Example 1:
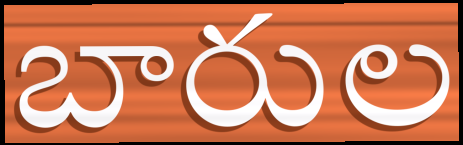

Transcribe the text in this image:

బారుల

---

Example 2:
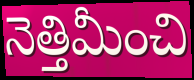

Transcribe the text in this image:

నెత్తిమీంచి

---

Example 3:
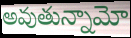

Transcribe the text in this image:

అవుతున్నామో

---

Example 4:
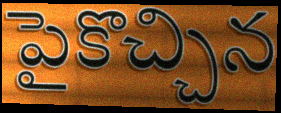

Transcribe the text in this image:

పైకొచ్చిన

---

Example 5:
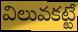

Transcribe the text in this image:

విలువకట్టే